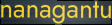
nanagantu